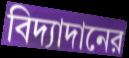
বিদ্যাদানের